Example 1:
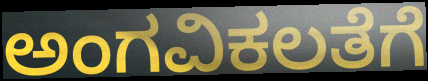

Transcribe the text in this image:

ಅಂಗವಿಕಲತೆಗೆ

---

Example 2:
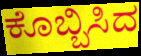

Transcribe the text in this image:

ಕೊಬ್ಬಿಸಿದ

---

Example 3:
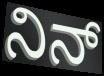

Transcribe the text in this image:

ನಿನ್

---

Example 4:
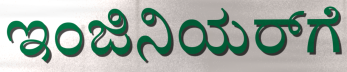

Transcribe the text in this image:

ಇಂಜಿನಿಯರ್‌ಗೆ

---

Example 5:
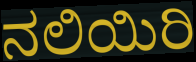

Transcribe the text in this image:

ನಲಿಯಿರಿ